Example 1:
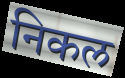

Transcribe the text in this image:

निकल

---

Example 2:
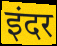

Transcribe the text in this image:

इंदर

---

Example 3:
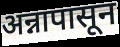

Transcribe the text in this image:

अन्नापासून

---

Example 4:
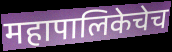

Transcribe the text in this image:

महापालिकेचेच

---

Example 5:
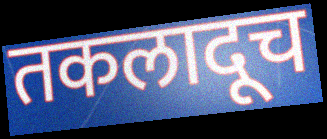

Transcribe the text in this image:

तकलादूच